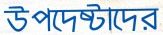
উপদেষ্টাদের